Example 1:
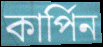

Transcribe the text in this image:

কার্পিন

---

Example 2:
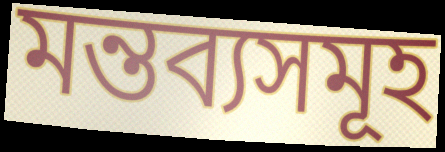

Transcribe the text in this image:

মন্তব্যসমূহ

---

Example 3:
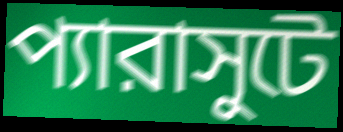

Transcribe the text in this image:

প্যারাসুটে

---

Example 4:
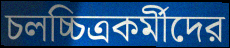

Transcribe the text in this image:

চলচ্চিত্রকর্মীদের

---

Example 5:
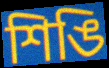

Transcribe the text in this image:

শিঙি